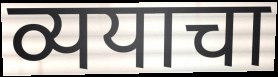
व्ययाचा